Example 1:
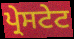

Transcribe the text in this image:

ਪ੍ਰੇਸਟੇਟ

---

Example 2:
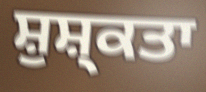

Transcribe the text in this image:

ਸ਼ੁਸ਼੍ਕਤਾ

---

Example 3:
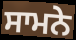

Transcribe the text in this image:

ਸਾਮਨੇ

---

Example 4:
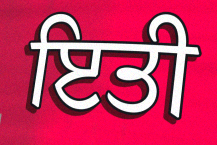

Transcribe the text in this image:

ਇਤੀ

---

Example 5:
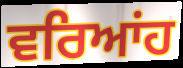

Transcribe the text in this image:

ਵਰਿਆਂਹ